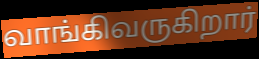
வாங்கிவருகிறார்